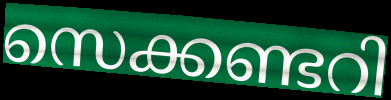
സെക്കണ്ടറി